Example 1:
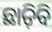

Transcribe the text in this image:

ଛାଡ଼ିବି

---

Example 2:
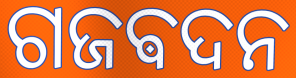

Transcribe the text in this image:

ଗଜଵଦନ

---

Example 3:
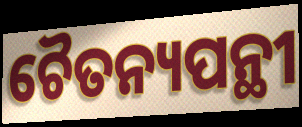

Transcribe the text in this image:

ଚୈତନ୍ୟପନ୍ଥୀ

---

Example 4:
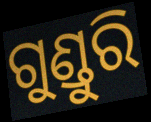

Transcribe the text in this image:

ଗୁଣ୍ଡୁରି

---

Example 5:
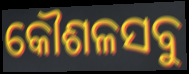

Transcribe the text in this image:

କୌଶଳସବୁ